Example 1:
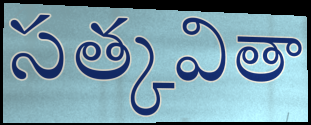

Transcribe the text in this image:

సత్కవితా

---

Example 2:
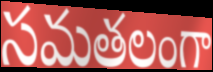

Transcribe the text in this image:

సమతలంగా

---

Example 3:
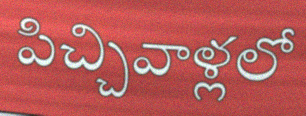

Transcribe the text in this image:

పిచ్చివాళ్లలో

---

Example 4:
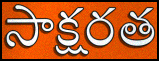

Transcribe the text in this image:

సాక్షరత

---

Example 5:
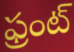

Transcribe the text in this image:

ఫ్రంట్